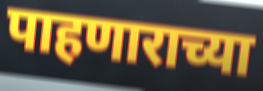
पाहणाराच्या